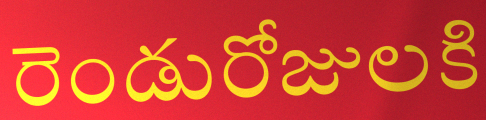
రెండురోజులకి